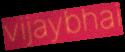
vijaybhai